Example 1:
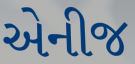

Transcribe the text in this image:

એનીજ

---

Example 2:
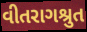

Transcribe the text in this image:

વીતરાગશ્રુત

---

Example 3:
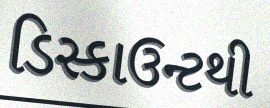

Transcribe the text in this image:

ડિસ્કાઉન્ટથી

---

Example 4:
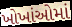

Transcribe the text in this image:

ખોખાંઓમાં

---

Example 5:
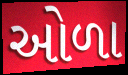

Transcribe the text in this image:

ઓળા